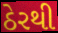
ઠેરથી